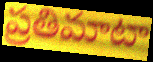
ప్రతిమాటా